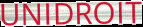
UNIDROIT